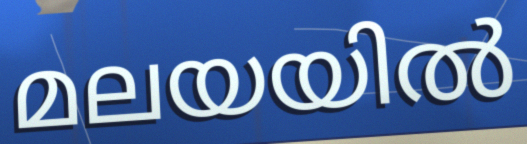
മലയയിൽ